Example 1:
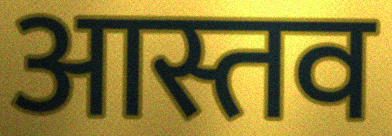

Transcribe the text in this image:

आस्तव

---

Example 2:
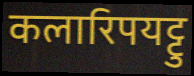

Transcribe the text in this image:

कलारिपयट्टु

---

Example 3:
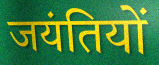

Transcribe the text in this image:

जयंतियों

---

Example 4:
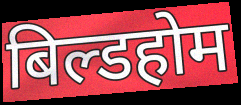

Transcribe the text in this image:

बिल्डहोम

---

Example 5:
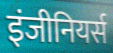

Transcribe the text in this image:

इंजीनियर्स